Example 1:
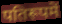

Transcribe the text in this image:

पतिरूपमें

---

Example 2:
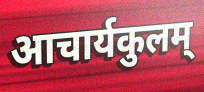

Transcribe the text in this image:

आचार्यकुलम्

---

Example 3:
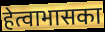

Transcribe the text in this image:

हेत्वाभासका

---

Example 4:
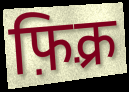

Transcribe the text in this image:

फ़िक़्र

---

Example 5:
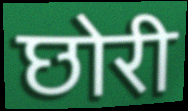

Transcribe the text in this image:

छोरी